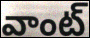
వాంట్